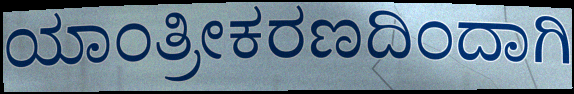
ಯಾಂತ್ರೀಕರಣದಿಂದಾಗಿ